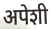
अपेशी